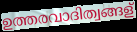
ഉത്തരവാദിത്വങ്ങള്